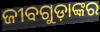
ଜୀବଗୁଡ଼ାଙ୍କର